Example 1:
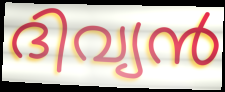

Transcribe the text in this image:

ദിവ്യൻ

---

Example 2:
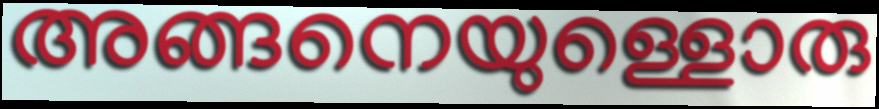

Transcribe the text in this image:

അങ്ങനെയുള്ളൊരു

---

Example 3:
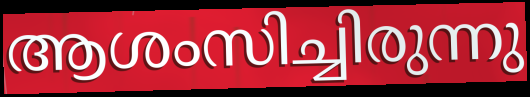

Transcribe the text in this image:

ആശംസിച്ചിരുന്നു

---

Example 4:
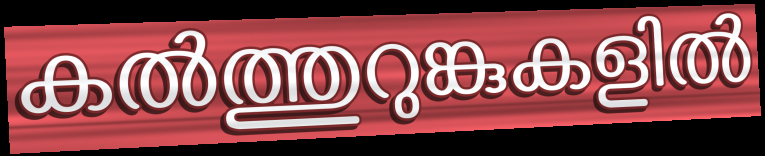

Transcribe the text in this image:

കൽത്തുറുങ്കുകളിൽ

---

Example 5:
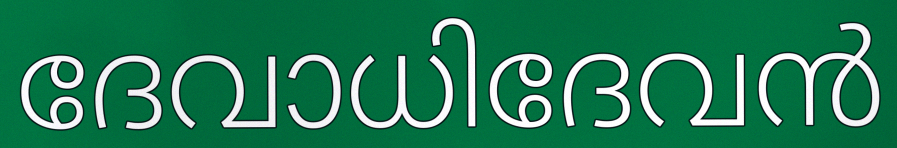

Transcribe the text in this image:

ദേവാധിദേവൻ